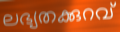
ലഭ്യതക്കുറവ്